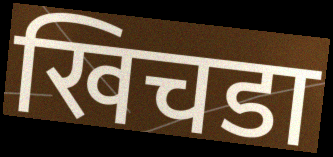
खिचडा